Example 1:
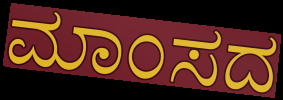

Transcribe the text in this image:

ಮಾಂಸದ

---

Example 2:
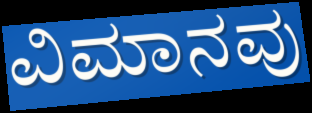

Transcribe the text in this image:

ವಿಮಾನವು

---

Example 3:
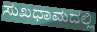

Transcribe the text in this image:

ಸುಖಧಾಮದಲ್ಲಿ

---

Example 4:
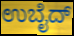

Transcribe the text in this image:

ಉಬೈದ್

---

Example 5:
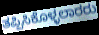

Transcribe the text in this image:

ತಪ್ಪಿಸಿಕೊಳ್ಳಲಾರರು